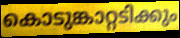
കൊടുങ്കാറ്റടിക്കും